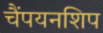
चैंपयनशिप